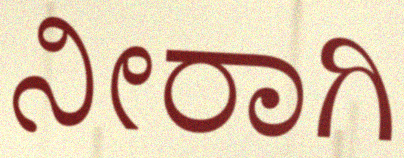
ನೀರಾಗಿ